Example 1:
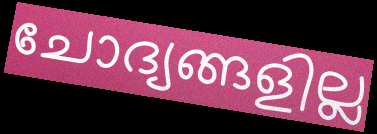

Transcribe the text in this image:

ചോദ്യങ്ങളില്ല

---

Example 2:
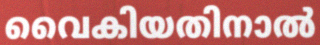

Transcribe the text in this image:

വൈകിയതിനാൽ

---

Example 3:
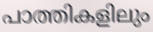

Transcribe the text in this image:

പാത്തികളിലും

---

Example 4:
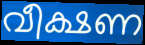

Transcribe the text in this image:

വീക്ഷണ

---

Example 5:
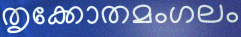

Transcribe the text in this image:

തൃക്കോതമംഗലം